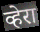
व्हेरा